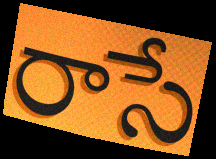
రాసే